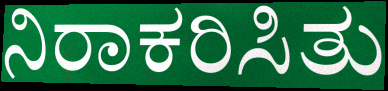
ನಿರಾಕರಿಸಿತು